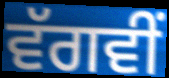
ਵੱਗਵੀਂ